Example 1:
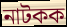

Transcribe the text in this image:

নাটকক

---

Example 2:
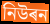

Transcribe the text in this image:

নিউৰন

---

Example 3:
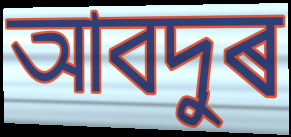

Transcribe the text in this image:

আবদুৰ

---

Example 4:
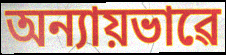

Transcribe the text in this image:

অন্যায়ভাৱে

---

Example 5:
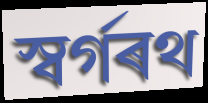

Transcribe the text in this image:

স্বৰ্গৰথ